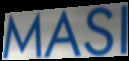
MASI